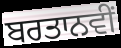
ਬਰਤਾਨਵੀਂ